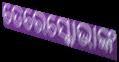
ତେରେସ୍କୋଭାଙ୍କ